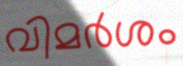
വിമർശം